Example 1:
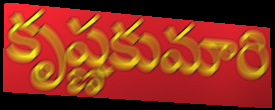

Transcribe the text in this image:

కృష్ణకుమారి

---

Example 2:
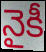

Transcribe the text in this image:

నైకీ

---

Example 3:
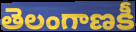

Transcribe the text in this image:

తెలంగాణకీ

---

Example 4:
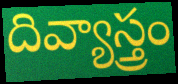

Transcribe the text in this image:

దివ్యాస్త్రం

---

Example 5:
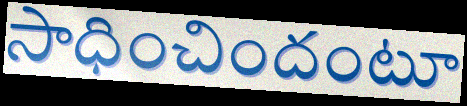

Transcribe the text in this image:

సాధించిందంటూ